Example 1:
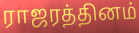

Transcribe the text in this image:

ராஜரத்தினம்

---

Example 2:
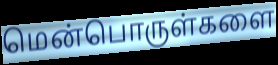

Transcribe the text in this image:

மென்பொருள்களை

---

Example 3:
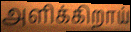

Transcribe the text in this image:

அளிக்கிறாய்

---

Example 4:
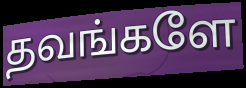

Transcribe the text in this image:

தவங்களே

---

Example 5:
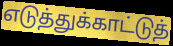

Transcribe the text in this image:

எடுத்துக்காட்டுத்